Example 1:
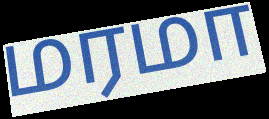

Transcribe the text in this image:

மரமா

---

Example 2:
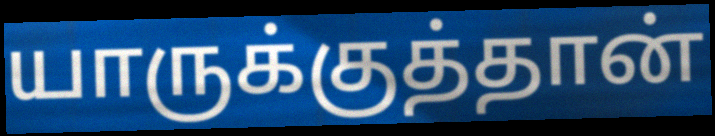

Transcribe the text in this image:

யாருக்குத்தான்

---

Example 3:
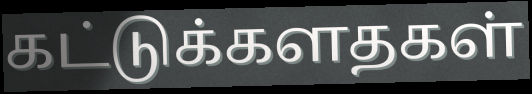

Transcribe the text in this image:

கட்டுக்களதகள்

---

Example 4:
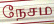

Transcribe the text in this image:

நேசம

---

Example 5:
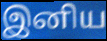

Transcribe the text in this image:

இனிய